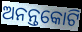
ଅନନ୍ତକୋଟି